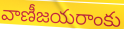
వాణీజయరాంకు